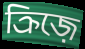
ক্রিজ়ে